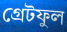
গ্ৰেটফুল